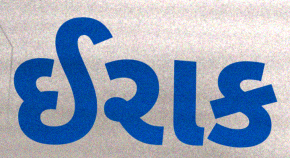
ઈરાક